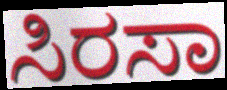
ಸಿರಸಾ